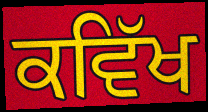
ਕਵਿੱਖ